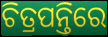
ଚିତ୍ରପନ୍ତିରେ